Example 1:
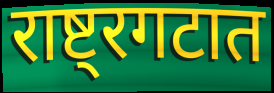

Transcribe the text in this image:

राष्ट्रगटात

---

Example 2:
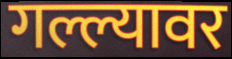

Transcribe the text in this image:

गल्ल्यावर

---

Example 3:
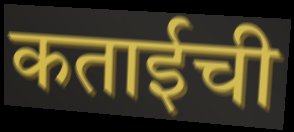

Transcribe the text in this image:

कताईची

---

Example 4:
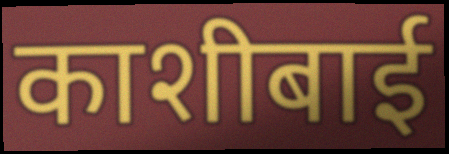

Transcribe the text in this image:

काशीबाई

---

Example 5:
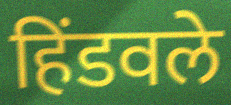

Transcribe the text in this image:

हिंडवले